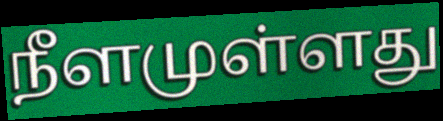
நீளமுள்ளது